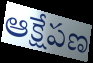
ఆక్షేపణ